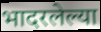
भादरलेल्या